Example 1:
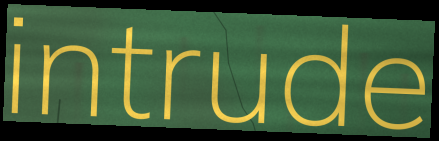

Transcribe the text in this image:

intrude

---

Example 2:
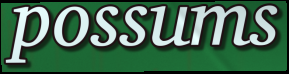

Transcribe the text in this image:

possums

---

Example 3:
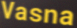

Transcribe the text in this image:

Vasna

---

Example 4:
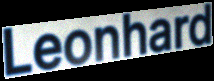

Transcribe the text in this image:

Leonhard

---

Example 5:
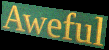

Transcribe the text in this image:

Aweful